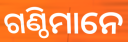
ଗଣ୍ଠିମାନେ